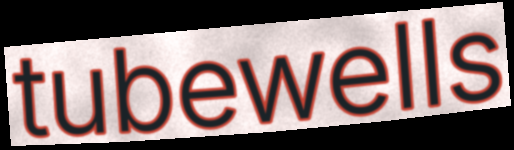
tubewells